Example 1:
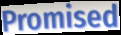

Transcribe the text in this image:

Promised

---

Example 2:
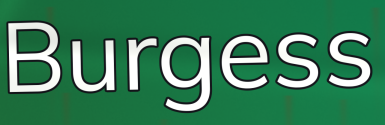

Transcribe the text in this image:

Burgess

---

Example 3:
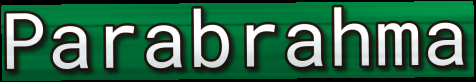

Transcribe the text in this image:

Parabrahma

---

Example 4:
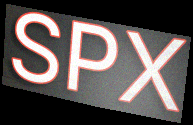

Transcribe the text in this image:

SPX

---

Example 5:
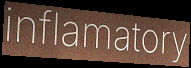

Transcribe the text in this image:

inflamatory